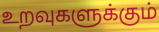
உறவுகளுக்கும்